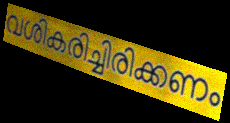
വശികരിച്ചിരിക്കണം